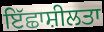
ਇੱਛਾਸ਼ੀਲਤਾ